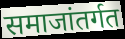
समाजांतर्गत